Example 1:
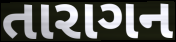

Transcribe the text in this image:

તારાગન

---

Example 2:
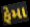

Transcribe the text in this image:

ફેમા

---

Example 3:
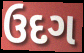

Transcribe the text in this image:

ઉદગ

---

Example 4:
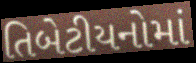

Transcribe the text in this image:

તિબેટીયનોમાં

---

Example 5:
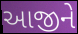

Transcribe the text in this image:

આજીને